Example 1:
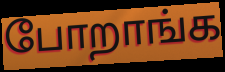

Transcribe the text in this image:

போறாங்க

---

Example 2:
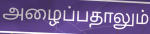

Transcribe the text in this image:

அழைப்பதாலும்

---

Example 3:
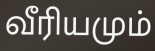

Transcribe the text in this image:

வீரியமும்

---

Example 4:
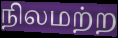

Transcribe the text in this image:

நிலமற்ற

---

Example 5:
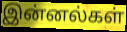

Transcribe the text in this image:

இன்னல்கள்